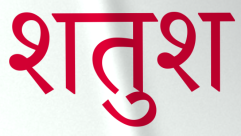
शतुश